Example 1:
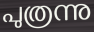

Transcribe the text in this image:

പുത്രന്നു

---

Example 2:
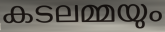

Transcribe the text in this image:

കടലമ്മയും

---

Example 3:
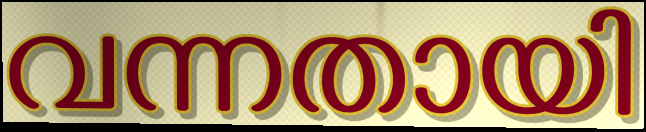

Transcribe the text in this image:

വന്നതായി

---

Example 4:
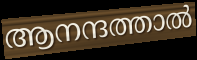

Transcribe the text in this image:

ആനന്ദത്താൽ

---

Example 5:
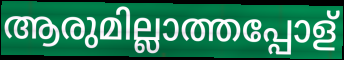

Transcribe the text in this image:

ആരുമില്ലാത്തപ്പോള്